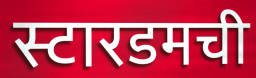
स्टारडमची